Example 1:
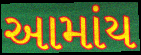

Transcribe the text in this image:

આમાંય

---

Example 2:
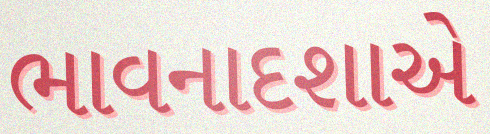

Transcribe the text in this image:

ભાવનાદશાએ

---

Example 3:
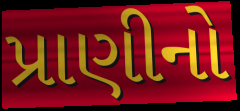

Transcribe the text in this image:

પ્રાણીનો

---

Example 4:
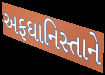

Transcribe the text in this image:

અફઘાનિસ્તાને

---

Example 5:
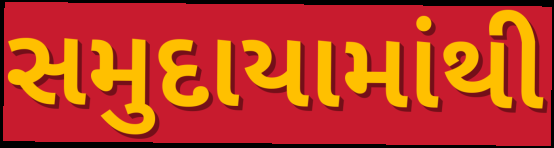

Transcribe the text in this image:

સમુદાયામાંથી